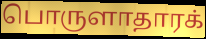
பொருளாதாரக்